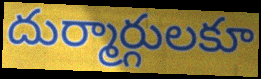
దుర్మార్గులకూ